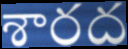
శారద